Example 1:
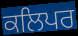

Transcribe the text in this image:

ਕਲਿਪਰ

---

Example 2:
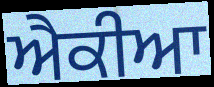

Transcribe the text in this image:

ਐਕੀਆ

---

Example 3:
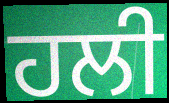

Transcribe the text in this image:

ਹਲੀ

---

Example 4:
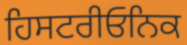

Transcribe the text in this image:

ਹਿਸਟਰੀਓਨਿਕ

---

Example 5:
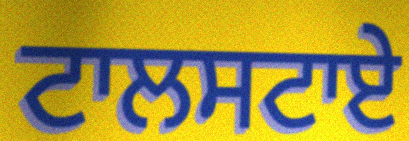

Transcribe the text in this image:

ਟਾਲਸਟਾਏ